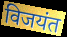
विजयंत